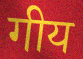
गीय